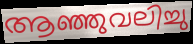
ആഞ്ഞുവലിച്ചു